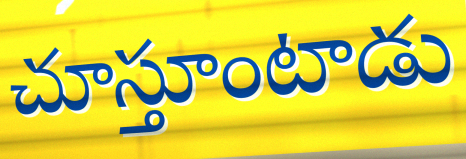
చూస్తూంటాడు